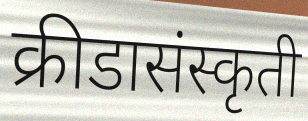
क्रीडासंस्कृती